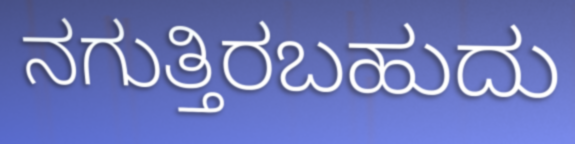
ನಗುತ್ತಿರಬಹುದು